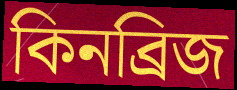
কিনব্রিজ